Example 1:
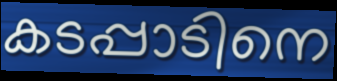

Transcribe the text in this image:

കടപ്പാടിനെ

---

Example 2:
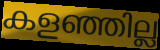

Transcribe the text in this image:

കളഞ്ഞില്ല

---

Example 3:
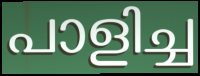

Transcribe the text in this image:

പാളിച്ച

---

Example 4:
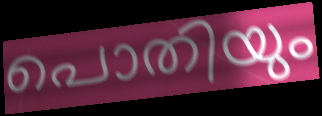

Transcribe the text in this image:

പൊതിയും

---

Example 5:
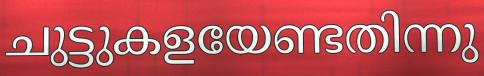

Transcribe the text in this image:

ചുട്ടുകളയേണ്ടതിന്നു